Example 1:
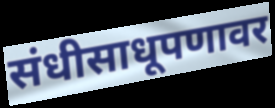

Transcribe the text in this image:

संधीसाधूपणावर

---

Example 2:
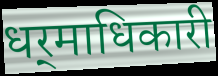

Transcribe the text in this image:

धर्माधिकारी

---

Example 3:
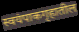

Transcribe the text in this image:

स्वयंपाकगृहातील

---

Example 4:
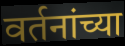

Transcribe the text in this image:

वर्तनांच्या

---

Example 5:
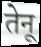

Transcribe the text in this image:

तेनू